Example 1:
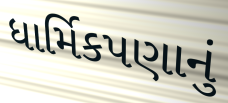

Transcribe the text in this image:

ધાર્મિકપણાનું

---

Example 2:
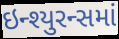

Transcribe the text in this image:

ઇન્શ્યુરન્સમાં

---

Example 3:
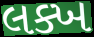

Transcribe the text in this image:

લક્ખ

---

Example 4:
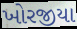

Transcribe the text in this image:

ખોરજીયા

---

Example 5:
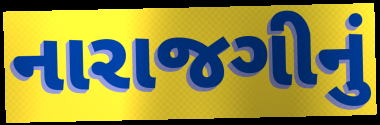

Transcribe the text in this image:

નારાજગીનું